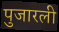
पुजारली